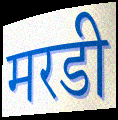
मरडी